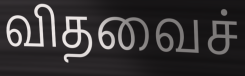
விதவைச்